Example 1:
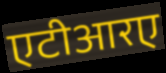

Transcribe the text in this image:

एटीआरए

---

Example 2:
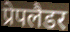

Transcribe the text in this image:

प्रेपलैडर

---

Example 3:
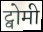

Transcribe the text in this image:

ट्वोमी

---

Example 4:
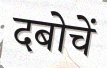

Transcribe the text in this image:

दबोचें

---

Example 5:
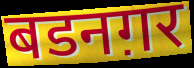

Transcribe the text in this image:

बडनग़र